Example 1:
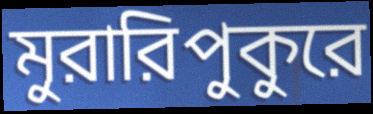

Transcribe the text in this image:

মুরারিপুকুরে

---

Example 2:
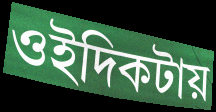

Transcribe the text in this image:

ওইদিকটায়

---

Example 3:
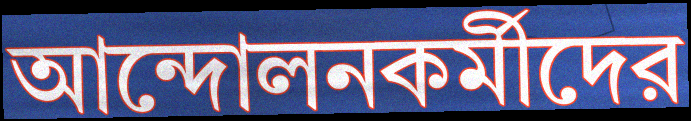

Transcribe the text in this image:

আন্দোলনকর্মীদের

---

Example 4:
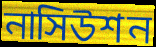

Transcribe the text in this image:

নাসিউশন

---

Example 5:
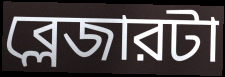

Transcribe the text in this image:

ব্লেজারটা